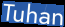
Tuhan